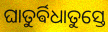
ଘାତୁର୍ଵିଧାତୁସ୍ତେ